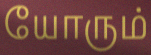
யோரும்